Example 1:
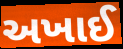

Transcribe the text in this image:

અખાઈ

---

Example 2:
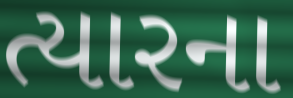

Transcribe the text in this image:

ત્યારના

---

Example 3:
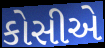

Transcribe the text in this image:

કોસીએ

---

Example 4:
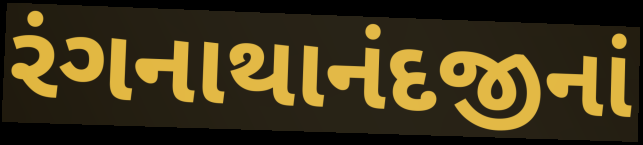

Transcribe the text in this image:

રંગનાથાનંદજીનાં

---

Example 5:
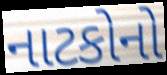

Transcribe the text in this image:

નાટકોનો